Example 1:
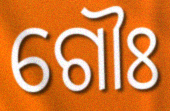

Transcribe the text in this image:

ଗୌଃ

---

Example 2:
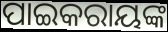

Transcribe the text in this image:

ପାଇକରାୟଙ୍କ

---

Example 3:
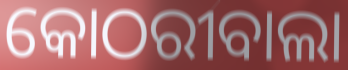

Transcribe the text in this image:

କୋଠରୀବାଲା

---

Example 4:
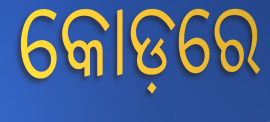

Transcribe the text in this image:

କୋଡ଼ରେ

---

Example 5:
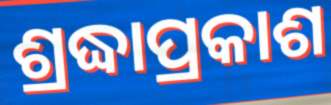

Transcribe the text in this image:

ଶ୍ରଦ୍ଧାପ୍ରକାଶ